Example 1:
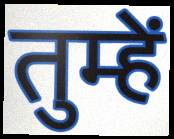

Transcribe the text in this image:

तुम्‍हें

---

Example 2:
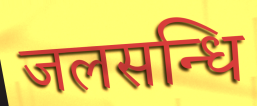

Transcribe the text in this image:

जलसन्धि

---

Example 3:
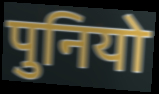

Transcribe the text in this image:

पुनियो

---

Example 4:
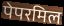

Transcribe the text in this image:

पेपरमिल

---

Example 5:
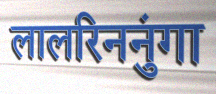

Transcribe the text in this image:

लालरिननुंगा